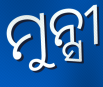
ମୁନ୍ସୀ